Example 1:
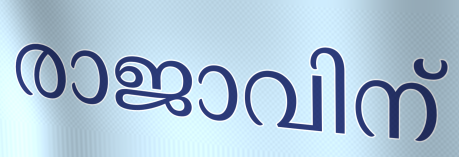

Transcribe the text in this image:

രാജാവിന്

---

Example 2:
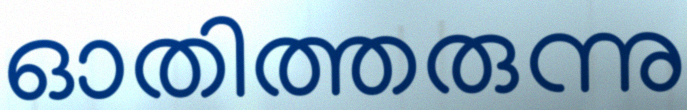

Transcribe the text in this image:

ഓതിത്തരുന്നു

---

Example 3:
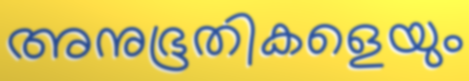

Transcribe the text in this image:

അനുഭൂതികളെയും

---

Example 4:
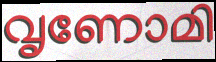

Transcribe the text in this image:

വൃണോമി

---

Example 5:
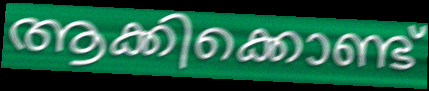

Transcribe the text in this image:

ആക്കിക്കൊണ്ട്